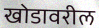
खोडावरील